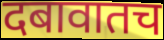
दबावातच